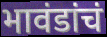
भावंडांचं